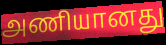
அணியானது